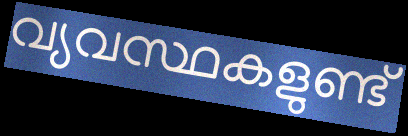
വ്യവസ്ഥകളുണ്ട്